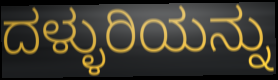
ದಳ್ಳುರಿಯನ್ನು